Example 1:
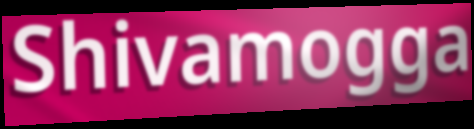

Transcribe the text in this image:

Shivamogga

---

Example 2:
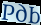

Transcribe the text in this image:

Pdb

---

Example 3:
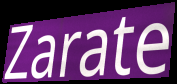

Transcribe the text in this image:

Zarate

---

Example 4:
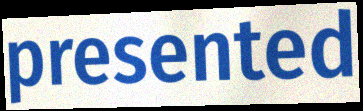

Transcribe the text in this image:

presented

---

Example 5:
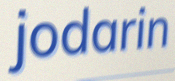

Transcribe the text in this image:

jodarin